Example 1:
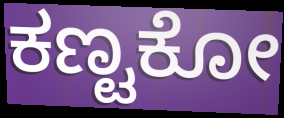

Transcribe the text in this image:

ಕಣ್ಟಕೋ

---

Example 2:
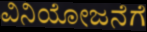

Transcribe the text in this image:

ವಿನಿಯೋಜನೆಗೆ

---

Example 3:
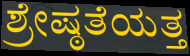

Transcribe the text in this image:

ಶ್ರೇಷ್ಠತೆಯತ್ತ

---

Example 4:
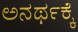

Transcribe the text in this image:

ಅನರ್ಥಕ್ಕೆ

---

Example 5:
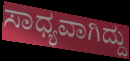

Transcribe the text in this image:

ಸಾಧ್ಯವಾಗಿದ್ದು